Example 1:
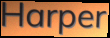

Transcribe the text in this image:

Harper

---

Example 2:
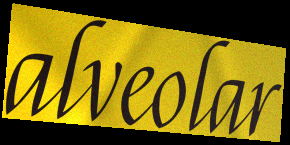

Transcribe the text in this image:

alveolar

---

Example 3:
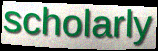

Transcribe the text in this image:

scholarly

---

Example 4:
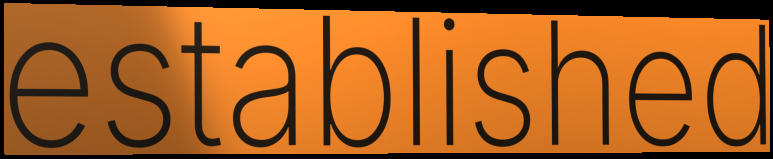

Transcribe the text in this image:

established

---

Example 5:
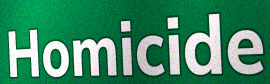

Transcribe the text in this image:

Homicide